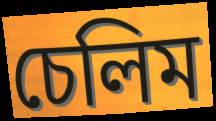
চেলিম